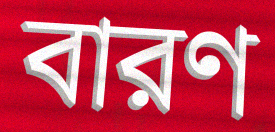
বারণ